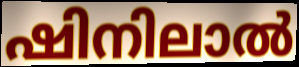
ഷിനിലാൽ